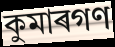
কুমাৰগণ